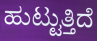
ಹುಟ್ಟುತ್ತಿದೆ